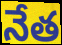
నేత